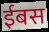
ईबस